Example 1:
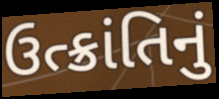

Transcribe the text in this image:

ઉત્ક્રાંતિનું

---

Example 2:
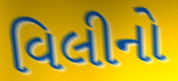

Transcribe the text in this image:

વિલીનો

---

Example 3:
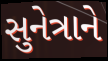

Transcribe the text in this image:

સુનેત્રાને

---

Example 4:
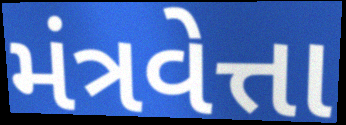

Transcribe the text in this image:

મંત્રવેત્તા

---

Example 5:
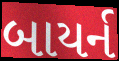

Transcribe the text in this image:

બાયર્ન